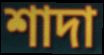
শাদা